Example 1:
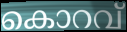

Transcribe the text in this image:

കൊറവ്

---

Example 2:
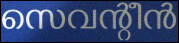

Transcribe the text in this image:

സെവന്റീൻ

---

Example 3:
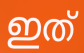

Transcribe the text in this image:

ഇത്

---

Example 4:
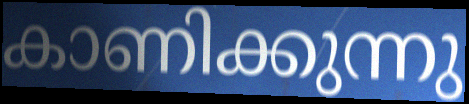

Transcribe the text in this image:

കാണിക്കുന്നു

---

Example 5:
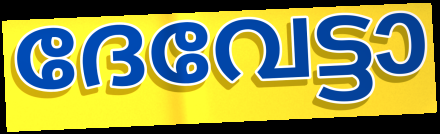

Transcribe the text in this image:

ദേവേട്ടാ